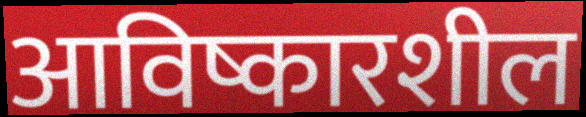
आविष्कारशील